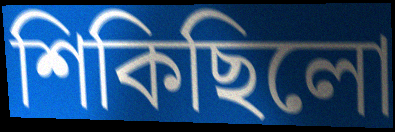
শিকিছিলো